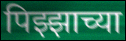
पिझ्झाच्या